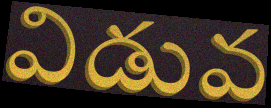
విడువ